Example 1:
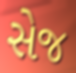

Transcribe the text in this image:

સેજ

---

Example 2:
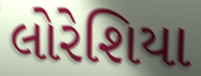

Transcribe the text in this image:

લોરેશિયા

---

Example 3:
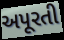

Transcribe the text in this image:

અપૂરતી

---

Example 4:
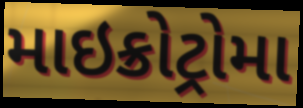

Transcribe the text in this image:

માઇક્રોટ્રોમા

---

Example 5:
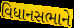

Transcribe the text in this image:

વિધાનસભાને